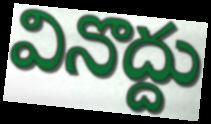
వినొద్దు